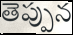
తెప్పున